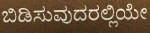
ಬಿಡಿಸುವುದರಲ್ಲಿಯೇ